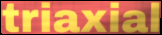
triaxial